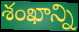
శంఖాన్ని